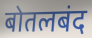
बोतलबंद